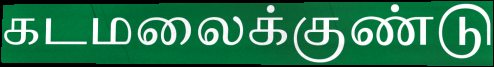
கடமலைக்குண்டு